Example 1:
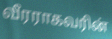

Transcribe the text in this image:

வீரராகவரின்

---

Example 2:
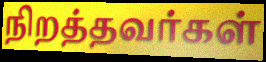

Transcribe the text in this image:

நிறத்தவர்கள்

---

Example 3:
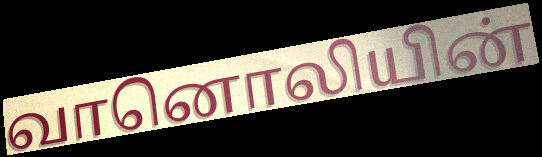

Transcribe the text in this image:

வானொலியின்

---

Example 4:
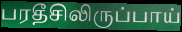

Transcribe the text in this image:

பரதீசிலிருப்பாய்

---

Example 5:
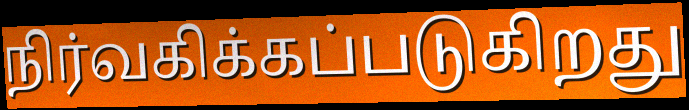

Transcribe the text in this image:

நிர்வகிக்கப்படுகிறது